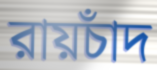
রায়চাঁদ